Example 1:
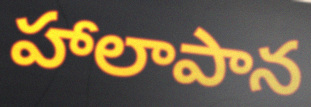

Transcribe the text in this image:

హాలాపాన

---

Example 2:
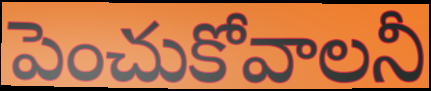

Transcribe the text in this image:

పెంచుకోవాలనీ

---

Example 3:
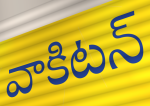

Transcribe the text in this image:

వాకిటన్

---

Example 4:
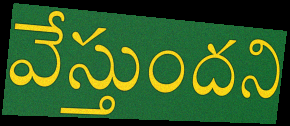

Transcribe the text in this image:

వేస్తుందని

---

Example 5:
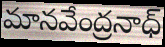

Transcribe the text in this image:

మానవేంద్రనాధ్